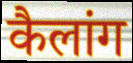
कैलांग